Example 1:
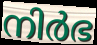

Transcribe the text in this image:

നിർഭ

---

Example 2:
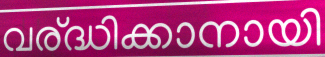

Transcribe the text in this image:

വര്ദ്ധിക്കാനായി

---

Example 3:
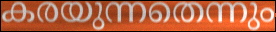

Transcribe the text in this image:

കരയുന്നതെന്നും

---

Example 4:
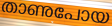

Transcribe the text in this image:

താണുപോയ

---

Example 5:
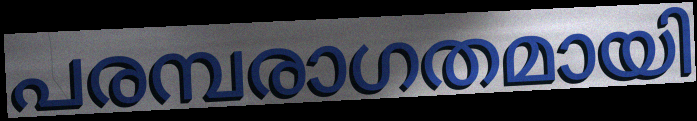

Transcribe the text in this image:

പരമ്പരാഗതമായി